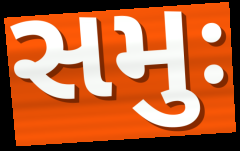
સમુઃ